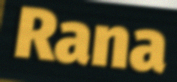
Rana